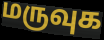
மருவுக